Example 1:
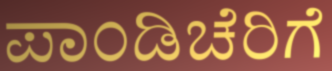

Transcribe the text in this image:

ಪಾಂಡಿಚೆರಿಗೆ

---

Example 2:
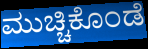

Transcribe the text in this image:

ಮುಚ್ಚಿಕೊಂಡೆ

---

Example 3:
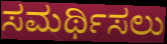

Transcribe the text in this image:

ಸಮರ್ಥಿಸಲು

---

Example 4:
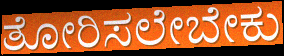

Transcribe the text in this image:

ತೋರಿಸಲೇಬೇಕು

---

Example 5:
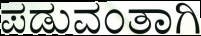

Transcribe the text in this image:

ಪಡುವಂತಾಗಿ